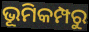
ଭୂମିକମ୍ପରୁ